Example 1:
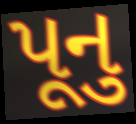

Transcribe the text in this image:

પૂનુ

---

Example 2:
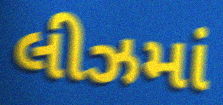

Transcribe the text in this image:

લીઝમાં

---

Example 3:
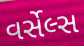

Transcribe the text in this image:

વર્સેલ્સ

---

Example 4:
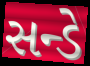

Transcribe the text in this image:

સન્ડે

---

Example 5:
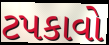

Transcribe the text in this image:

ટપકાવો